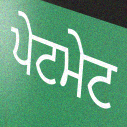
ਪੇਟਮੇਟ